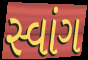
સ્વાંગ